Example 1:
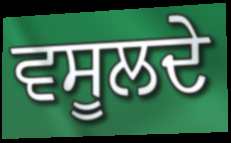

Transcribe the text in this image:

ਵਸੂਲਦੇ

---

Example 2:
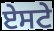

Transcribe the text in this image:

ਏਸਟੇ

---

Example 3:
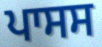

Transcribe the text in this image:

ਪਾਸਸ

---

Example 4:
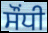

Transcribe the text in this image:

ਸੌਂਧੀ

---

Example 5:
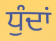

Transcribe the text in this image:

ਧੁੰਦਾਂ